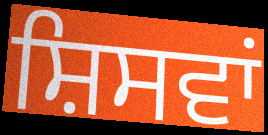
ਸ਼ਿਸਵਾਂ